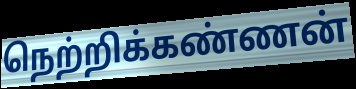
நெற்றிக்கண்ணன்